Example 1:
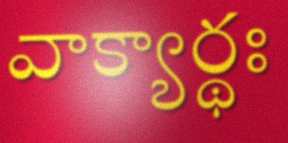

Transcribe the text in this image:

వాక్యార్థః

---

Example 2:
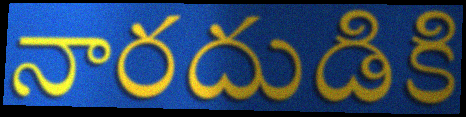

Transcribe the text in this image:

నారదుడికి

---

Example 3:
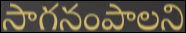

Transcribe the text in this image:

సాగనంపాలని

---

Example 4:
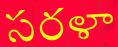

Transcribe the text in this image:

సరళా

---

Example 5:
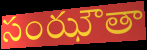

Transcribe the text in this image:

సంఝౌతా